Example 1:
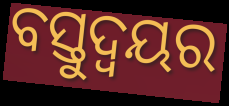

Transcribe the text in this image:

ବସ୍ତୁଦ୍ୱୟର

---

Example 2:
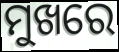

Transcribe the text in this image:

ମୁଖରେ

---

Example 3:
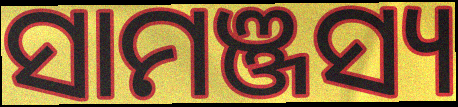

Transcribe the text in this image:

ସାମଞ୍ଜସ୍ୟ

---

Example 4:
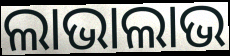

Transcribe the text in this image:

ଲାଭାଲାଭ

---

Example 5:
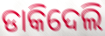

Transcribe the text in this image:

ଡାକିଦେଲି